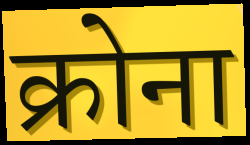
क्रोना